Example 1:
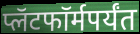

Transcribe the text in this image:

प्लॅटफॉर्मपर्यंत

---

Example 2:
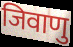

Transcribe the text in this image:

जिवाणु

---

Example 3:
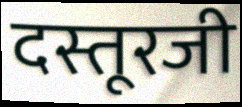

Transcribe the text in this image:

दस्तूरजी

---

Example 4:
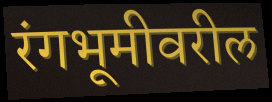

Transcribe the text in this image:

रंगभूमीवरील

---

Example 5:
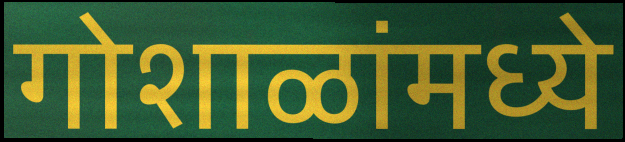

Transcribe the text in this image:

गोशाळांमध्ये